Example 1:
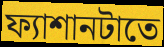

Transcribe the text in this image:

ফ্যাশানটাতে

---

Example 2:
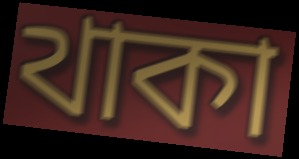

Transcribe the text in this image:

থাকা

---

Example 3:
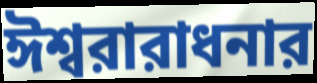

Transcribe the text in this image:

ঈশ্বরারাধনার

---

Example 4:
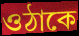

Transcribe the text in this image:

ওঠাকে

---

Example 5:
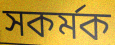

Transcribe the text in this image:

সকর্মক